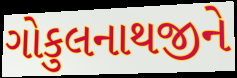
ગોકુલનાથજીને